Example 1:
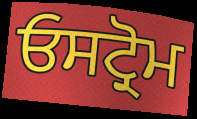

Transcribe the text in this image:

ਓਸਟ੍ਰੋਮ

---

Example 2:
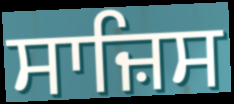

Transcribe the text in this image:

ਸਾਜ਼ਿਸ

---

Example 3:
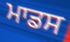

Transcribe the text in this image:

ਮਾਡਸ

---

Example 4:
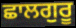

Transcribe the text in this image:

ਛਾਲਗੁਰੂ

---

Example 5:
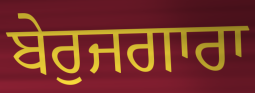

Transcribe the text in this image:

ਬੇਰੁਜਗਾਰਾ